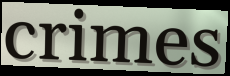
crimes